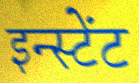
इन्स्टेंट